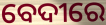
ବେଦୀରେ